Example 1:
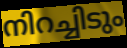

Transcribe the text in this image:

നിറച്ചിടും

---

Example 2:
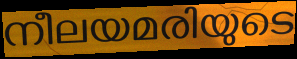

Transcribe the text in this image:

നീലയമരിയുടെ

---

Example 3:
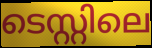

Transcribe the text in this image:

ടെസ്റ്റിലെ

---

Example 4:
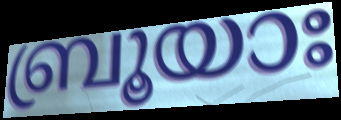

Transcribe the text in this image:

ബ്രൂയാഃ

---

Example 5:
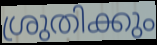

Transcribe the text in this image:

ശ്രുതിക്കും